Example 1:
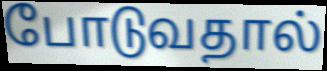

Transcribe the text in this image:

போடுவதால்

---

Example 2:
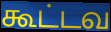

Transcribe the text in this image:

கூட்டவ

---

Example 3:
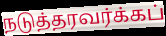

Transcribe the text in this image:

நடுத்தரவர்க்கப்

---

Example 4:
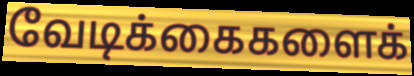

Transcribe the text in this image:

வேடிக்கைகளைக்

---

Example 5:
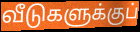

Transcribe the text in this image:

வீடுகளுக்குப்